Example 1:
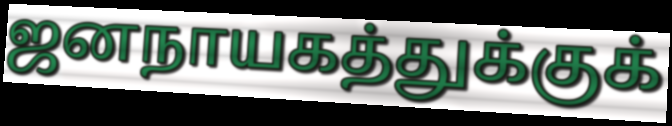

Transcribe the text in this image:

ஜனநாயகத்துக்குக்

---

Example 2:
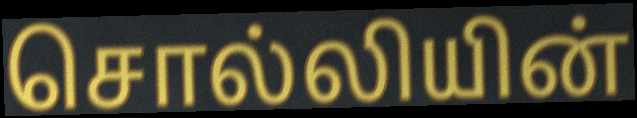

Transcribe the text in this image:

சொல்லியின்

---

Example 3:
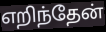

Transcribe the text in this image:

எறிந்தேன்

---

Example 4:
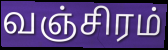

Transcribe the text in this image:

வஞ்சிரம்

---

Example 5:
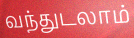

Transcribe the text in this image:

வந்துடலாம்